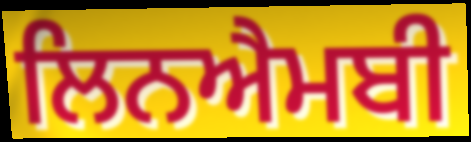
ਲਿਨਐਮਬੀ